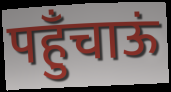
पहुँचाऊं